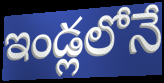
ఇండ్లలోనే